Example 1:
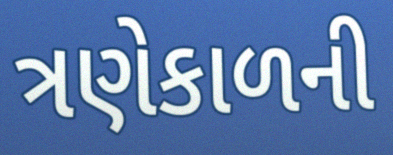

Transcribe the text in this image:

ત્રણેકાળની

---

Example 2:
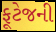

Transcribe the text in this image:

ફૂટેજની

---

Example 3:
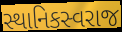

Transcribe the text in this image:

સ્થાનિકસ્વરાજ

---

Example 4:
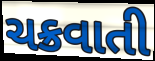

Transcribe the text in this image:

ચક્રવાતી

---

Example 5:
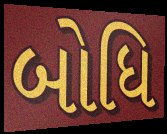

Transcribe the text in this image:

બોધિ